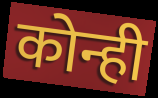
कोन्ही